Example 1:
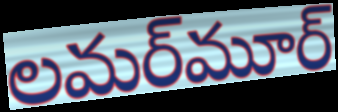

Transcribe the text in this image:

లమర్‌మూర్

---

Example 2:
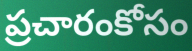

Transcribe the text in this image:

ప్రచారంకోసం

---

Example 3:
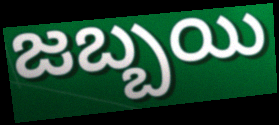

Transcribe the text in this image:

జబ్బయి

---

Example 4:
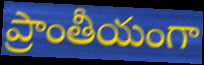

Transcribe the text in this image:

ప్రాంతీయంగా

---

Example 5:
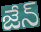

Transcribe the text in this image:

జేన్